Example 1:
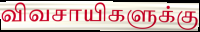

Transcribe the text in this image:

விவசாயிகளுக்கு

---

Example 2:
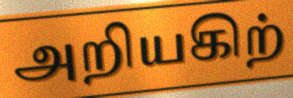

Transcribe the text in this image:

அறியகிற்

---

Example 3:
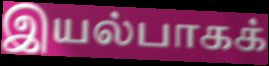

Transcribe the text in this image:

இயல்பாகக்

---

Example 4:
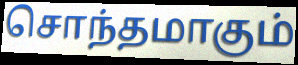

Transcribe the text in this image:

சொந்தமாகும்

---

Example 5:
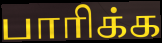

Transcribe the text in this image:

பாரிக்க